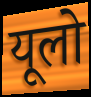
यूलो